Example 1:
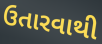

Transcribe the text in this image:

ઉતારવાથી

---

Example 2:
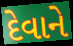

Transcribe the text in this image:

દેવાને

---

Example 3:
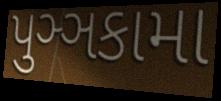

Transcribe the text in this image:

પુઞ્ઞકામા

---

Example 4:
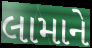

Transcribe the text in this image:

લામાને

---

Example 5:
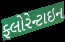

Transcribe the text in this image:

ફ્લોરેન્ટાઇન